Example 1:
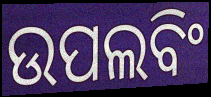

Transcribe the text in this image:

ଉପଲବିଂ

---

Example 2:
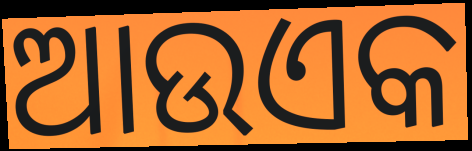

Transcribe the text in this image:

ଆଉଏକ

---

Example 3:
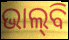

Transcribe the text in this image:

ଭାଲ୍‌ବି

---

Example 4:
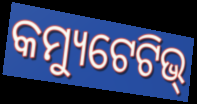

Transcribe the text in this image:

କମ୍ୟୁଟେଟିଭ୍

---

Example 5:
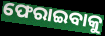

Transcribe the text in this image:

ଫେରାଇବାକୁ